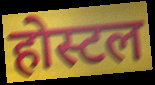
होस्टल